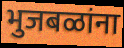
भुजबळांना